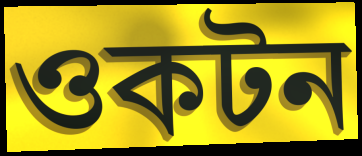
ওকটন